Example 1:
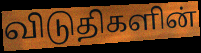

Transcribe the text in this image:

விடுதிகளின்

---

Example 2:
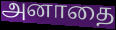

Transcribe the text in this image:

அனாதை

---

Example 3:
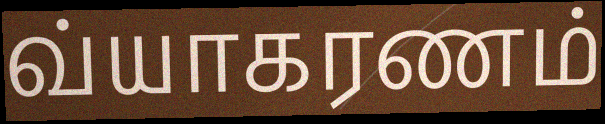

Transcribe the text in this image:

வ்யாகரணம்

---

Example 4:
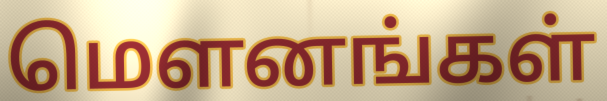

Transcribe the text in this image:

மௌனங்கள்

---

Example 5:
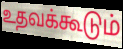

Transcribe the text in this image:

உதவக்கூடும்